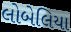
લોબેલિયા